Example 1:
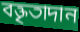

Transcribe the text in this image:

বক্তৃতাদান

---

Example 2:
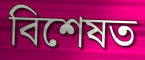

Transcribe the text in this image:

বিশেষত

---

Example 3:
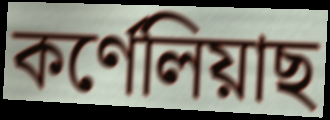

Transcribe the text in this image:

কৰ্ণেলিয়াছ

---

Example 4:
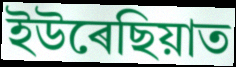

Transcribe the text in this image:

ইউৰেছিয়াত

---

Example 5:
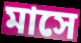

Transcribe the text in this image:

মাসে